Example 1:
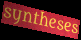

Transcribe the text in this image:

syntheses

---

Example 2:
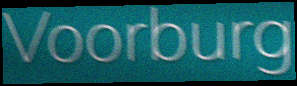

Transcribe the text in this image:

Voorburg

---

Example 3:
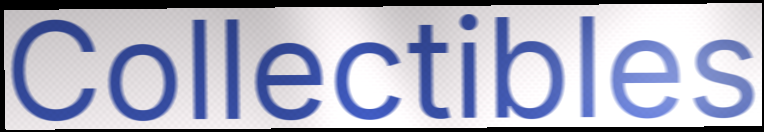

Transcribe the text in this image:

Collectibles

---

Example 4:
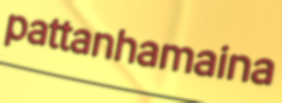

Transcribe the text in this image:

pattanhamaina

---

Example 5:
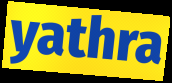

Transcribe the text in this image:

yathra